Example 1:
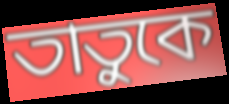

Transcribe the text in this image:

তাতুকে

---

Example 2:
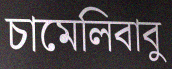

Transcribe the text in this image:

চামেলিবাবু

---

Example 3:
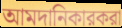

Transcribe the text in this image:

আমদানিকারকরা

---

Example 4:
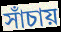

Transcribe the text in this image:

সাঁচায়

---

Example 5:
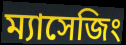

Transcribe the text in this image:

ম্যাসেজিং